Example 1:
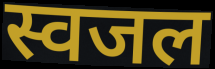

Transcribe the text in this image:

स्वजल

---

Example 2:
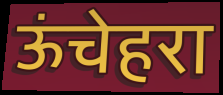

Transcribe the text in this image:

ऊंचेहरा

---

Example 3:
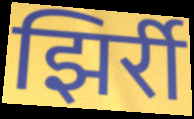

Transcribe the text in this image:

झिर्री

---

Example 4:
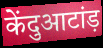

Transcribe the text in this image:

केंदुआटांड़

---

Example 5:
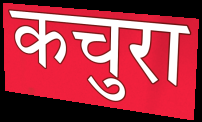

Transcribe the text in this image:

कचुरा